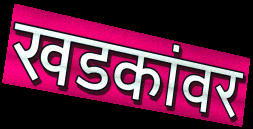
खडकांवर